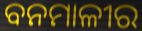
ବନମାଳୀର